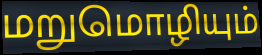
மறுமொழியும்